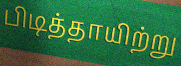
பிடித்தாயிற்று